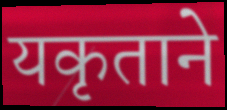
यकृताने